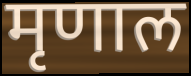
मृणाल